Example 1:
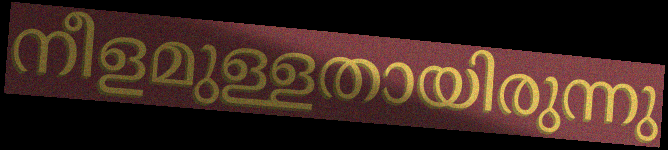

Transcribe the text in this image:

നീളമുള്ളതായിരുന്നു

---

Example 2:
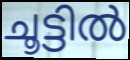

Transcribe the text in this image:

ചൂട്ടിൽ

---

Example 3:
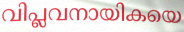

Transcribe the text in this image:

വിപ്ലവനായികയെ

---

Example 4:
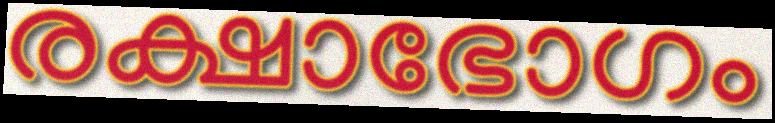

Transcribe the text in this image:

രക്ഷാഭോഗം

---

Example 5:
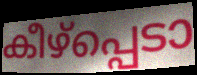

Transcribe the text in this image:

കീഴ്പ്പെടാ